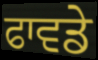
ਫਾਵਡੇ